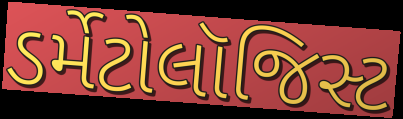
ડર્મેટોલૉજિસ્ટ